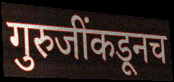
गुरुजींकडूनच